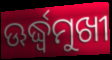
ଊର୍ଦ୍ଧ୍ବମୁଖୀ